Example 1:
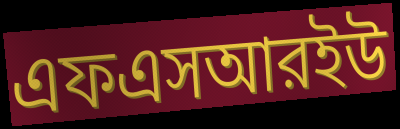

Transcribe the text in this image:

এফএসআরইউ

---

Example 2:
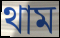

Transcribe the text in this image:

থাম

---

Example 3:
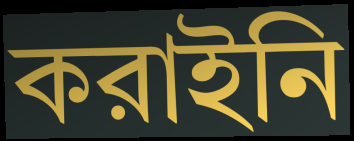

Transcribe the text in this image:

করাইনি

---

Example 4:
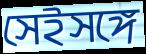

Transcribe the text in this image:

সেইসঙ্গে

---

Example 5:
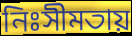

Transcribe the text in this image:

নিঃসীমতায়